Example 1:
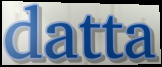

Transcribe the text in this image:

datta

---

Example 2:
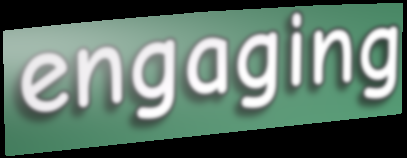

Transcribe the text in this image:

engaging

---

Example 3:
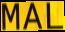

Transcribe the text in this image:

MAL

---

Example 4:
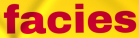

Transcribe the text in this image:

facies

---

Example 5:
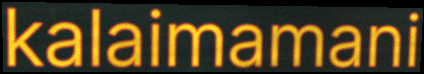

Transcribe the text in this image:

kalaimamani